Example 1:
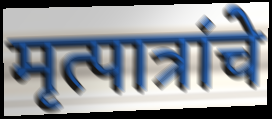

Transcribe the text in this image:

मृत्पात्रांचे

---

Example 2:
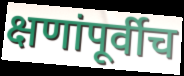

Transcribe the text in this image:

क्षणांपूर्वीच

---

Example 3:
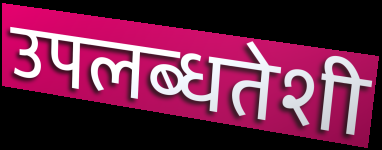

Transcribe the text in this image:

उपलब्धतेशी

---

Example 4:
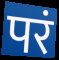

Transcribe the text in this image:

परं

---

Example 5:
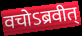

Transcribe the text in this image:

वचोऽब्रवीत्